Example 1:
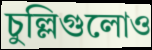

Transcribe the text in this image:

চুল্লিগুলোও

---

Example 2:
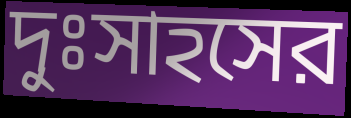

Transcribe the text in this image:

দুঃসাহসের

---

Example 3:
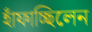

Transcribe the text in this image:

হাঁফাচ্ছিলেন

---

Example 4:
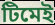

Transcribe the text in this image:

টিমেই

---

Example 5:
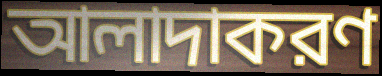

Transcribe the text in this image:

আলাদাকরণ